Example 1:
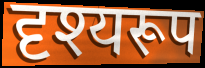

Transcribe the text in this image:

दृश्यरूप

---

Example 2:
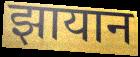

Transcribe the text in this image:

झायान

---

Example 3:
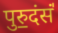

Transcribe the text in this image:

पुरु॒दंसं॑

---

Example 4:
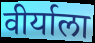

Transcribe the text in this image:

वीर्याला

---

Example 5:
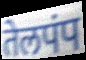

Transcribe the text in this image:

तेलपंप